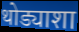
थोड्याशा